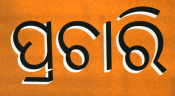
ପ୍ରଚାରି